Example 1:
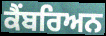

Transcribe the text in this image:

ਕੈਂਬਰਿਅਨ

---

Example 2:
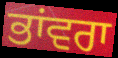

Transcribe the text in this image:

ਭਾਂਵਰਾ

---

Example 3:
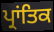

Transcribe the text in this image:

ਪ੍ਰਾਂਤਿਕ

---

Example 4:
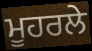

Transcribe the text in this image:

ਮੂਹਰਲੇ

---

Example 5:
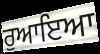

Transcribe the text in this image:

ਰੁਆਇਆ